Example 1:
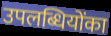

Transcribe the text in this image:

उपलब्धियोंका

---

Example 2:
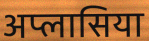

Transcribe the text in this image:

अप्लासिया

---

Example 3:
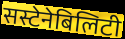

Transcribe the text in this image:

सस्टेनेबिलिटी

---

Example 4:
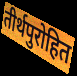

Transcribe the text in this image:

तीर्थपुरोहित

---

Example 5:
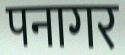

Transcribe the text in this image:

पनागर